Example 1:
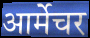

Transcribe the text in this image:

आर्मेचर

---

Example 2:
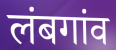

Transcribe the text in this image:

लंबगांव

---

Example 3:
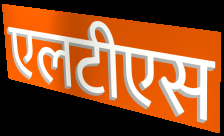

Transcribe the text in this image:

एलटीएस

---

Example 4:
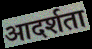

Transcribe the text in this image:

आदर्शता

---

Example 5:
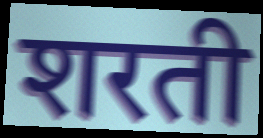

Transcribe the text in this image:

शरती